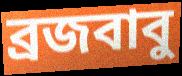
ব্রজবাবু